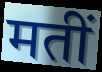
मतीं